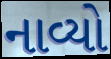
નાવ્યો